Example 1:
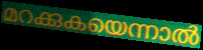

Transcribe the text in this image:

മറക്കുകയെന്നാൽ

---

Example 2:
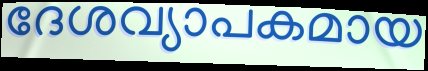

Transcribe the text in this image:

ദേശവ്യാപകമായ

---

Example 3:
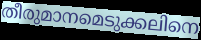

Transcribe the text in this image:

തീരുമാനമെടുക്കലിനെ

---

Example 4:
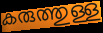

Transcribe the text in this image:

കരുത്തുള്ള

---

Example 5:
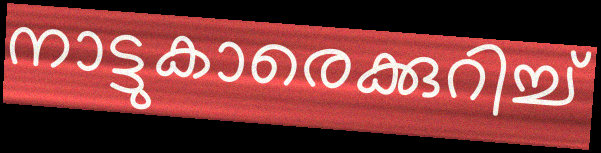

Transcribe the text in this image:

നാട്ടുകാരെക്കുറിച്ച്